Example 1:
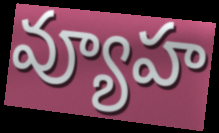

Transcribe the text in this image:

వ్యూహ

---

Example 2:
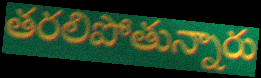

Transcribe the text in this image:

తరలిపోతున్నారు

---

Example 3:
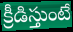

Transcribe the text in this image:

క్రీడిస్తుంటే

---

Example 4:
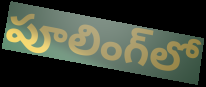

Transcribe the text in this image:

పూలింగ్‌లో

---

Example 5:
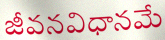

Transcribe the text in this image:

జీవనవిధానమే